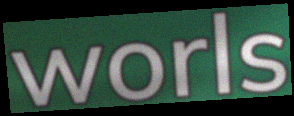
worls